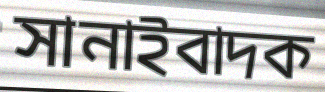
সানাইবাদক